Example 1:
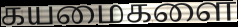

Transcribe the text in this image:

கயமைகளை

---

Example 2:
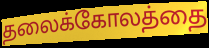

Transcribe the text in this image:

தலைக்கோலத்தை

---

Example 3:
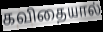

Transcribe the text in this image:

கவிதையால்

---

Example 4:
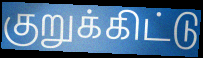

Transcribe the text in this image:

குறுக்கிட்டு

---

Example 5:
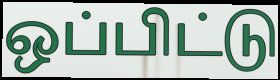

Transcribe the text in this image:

ஒப்பிட்டு